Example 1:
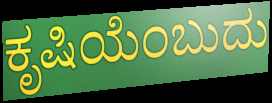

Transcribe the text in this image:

ಕೃಷಿಯೆಂಬುದು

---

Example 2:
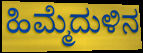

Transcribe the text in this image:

ಹಿಮ್ಮೆದುಳಿನ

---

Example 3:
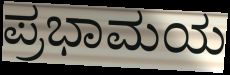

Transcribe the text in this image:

ಪ್ರಭಾಮಯ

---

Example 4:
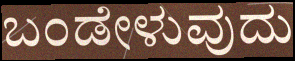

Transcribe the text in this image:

ಬಂಡೇಳುವುದು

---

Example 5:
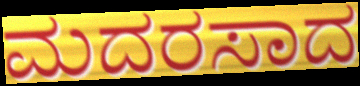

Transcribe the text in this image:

ಮದರಸಾದ